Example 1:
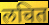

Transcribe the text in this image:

लचित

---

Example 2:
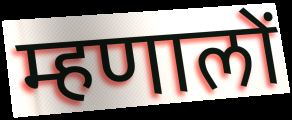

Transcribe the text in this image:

म्हणालों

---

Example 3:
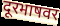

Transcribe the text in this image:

दूरभाषवर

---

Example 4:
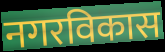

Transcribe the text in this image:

नगरविकास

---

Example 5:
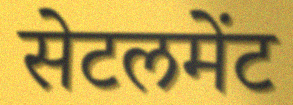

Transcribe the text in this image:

सेटलमेंट